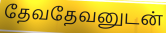
தேவதேவனுடன்